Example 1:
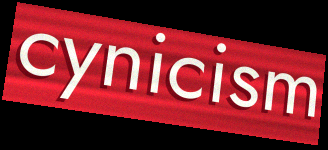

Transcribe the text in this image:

cynicism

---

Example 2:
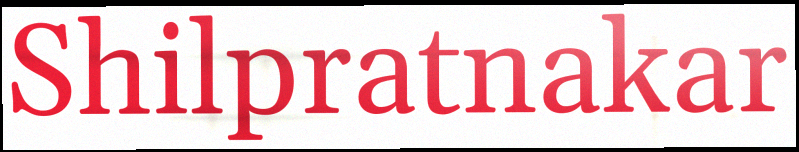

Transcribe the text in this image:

Shilpratnakar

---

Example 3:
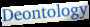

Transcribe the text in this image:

Deontology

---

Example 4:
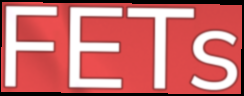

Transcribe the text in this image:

FETs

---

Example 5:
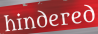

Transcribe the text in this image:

hindered